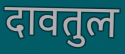
दावतुल